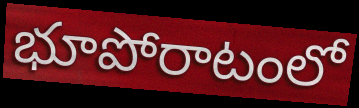
భూపోరాటంలో